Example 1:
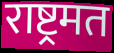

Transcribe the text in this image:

राष्ट्रमत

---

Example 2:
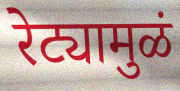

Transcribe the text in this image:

रेट्यामुळं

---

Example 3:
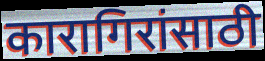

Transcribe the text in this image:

कारागिरांसाठी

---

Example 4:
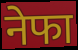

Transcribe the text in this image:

नेफा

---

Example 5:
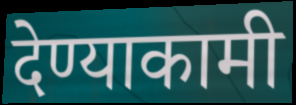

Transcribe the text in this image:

देण्याकामी